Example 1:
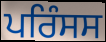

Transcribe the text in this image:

ਪਰਿੰਸਸ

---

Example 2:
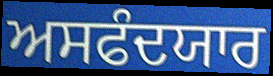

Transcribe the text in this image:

ਅਸਫੰਦਯਾਰ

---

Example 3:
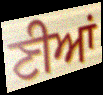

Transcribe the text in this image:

ਣੀਆਂ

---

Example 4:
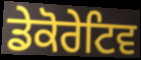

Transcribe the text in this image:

ਡੇਕੋਰੇਟਿਵ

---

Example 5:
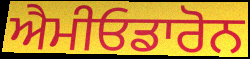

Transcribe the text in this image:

ਐਮੀਓਡਾਰੋਨ